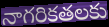
నాగరికతలకు